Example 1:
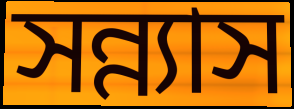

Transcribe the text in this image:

সন্ন্যাস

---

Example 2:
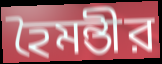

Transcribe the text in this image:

হৈমন্তীর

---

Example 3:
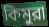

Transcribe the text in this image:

কিমুরা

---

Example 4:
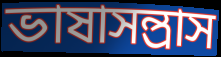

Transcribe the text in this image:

ভাষাসন্ত্রাস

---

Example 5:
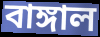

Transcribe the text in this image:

বাঙ্গাল